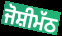
ਜੋਸ਼ੀਮੱਠ